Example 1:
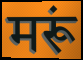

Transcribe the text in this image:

मरूं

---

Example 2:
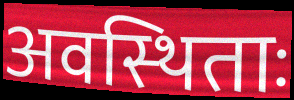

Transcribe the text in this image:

अवस्थिताः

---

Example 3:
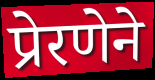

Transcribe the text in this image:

प्रेरणेने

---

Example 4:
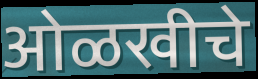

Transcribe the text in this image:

ओळखीचे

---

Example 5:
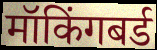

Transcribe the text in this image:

मॉकिंगबर्ड